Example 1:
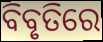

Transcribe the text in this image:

ବିବୃତିରେ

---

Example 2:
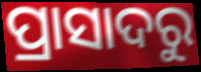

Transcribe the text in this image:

ପ୍ରାସାଦରୁ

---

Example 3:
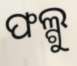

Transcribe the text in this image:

ଫଲ୍ଗୁ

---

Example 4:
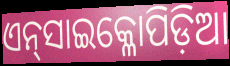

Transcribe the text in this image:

ଏନ୍‌ସାଇକ୍ଳୋପିଡ଼ିଆ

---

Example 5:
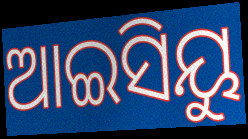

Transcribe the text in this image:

ଆଇସିୟୁ